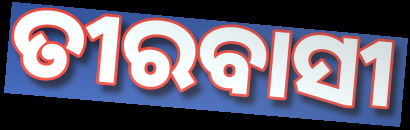
ତୀରବାସୀ